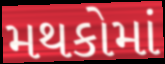
મથકોમાં